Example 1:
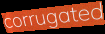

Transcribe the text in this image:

corrugated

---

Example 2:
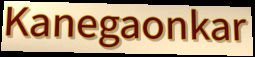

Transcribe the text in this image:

Kanegaonkar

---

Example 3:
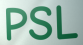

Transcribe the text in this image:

PSL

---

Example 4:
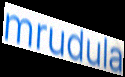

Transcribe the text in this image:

mrudula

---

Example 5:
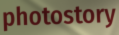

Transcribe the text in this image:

photostory